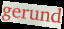
gerund